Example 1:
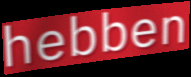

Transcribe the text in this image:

hebben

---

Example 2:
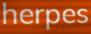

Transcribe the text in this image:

herpes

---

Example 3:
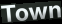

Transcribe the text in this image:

Town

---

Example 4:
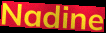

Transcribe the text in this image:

Nadine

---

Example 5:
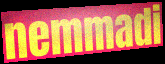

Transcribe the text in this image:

nemmadi